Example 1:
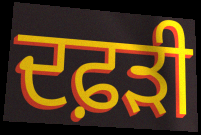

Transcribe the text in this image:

ਦਫ਼ੜੀ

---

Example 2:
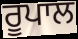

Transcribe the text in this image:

ਰੂਪਾਲ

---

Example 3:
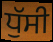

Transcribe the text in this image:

ਧੁੱਸੀ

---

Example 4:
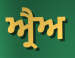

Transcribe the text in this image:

ਅ੍ਰੈਅ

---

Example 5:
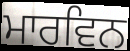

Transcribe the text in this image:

ਮਾਰਵਿਨ